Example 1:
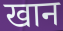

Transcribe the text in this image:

खान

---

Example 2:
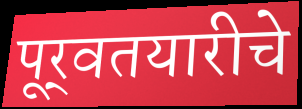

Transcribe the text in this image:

पूर्वतयारीचे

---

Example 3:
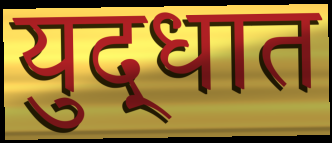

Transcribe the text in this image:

युद्धात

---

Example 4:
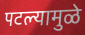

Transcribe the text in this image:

पटल्यामुळे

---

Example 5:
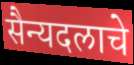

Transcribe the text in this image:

सैन्यदलाचे